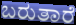
ಬರುತಾರೆ